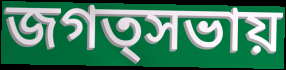
জগত্সভায়